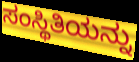
ಸಂಸ್ಥಿತಿಯನ್ನು